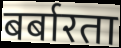
बर्बारता